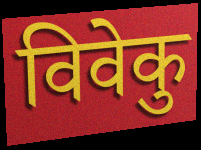
विवेकु